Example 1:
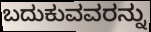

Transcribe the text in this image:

ಬದುಕುವವರನ್ನು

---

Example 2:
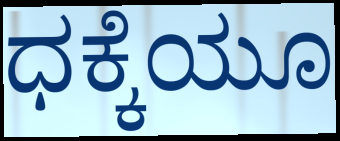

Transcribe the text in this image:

ಧಕ್ಕೆಯೂ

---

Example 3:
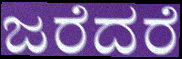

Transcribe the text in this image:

ಜರೆದರೆ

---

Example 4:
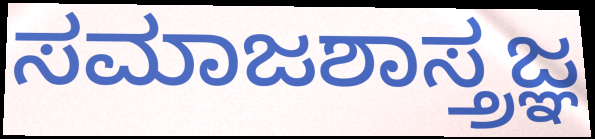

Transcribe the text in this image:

ಸಮಾಜಶಾಸ್ತ್ರಜ್ಞ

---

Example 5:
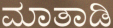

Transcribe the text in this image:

ಮಾತಾಡಿ